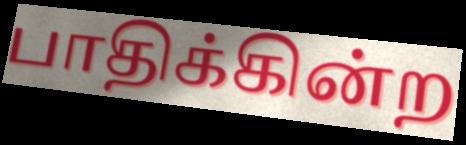
பாதிக்கின்ற